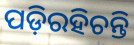
ପଡ଼ିରହିଚନ୍ତି